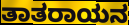
ತಾತರಾಯನ